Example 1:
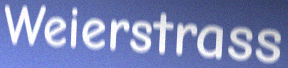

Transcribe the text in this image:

Weierstrass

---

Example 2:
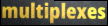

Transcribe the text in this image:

multiplexes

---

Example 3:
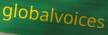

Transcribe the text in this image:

globalvoices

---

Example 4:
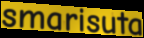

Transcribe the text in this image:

smarisuta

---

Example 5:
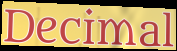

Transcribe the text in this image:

Decimal